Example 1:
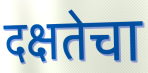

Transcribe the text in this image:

दक्षतेचा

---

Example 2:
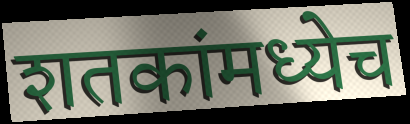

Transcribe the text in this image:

शतकांमध्येच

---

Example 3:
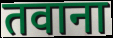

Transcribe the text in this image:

तवाना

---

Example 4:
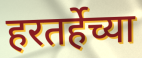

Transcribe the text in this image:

हरतर्हेच्या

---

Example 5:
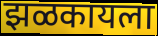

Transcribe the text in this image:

झळकायला